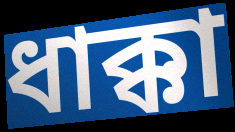
ধাক্কা